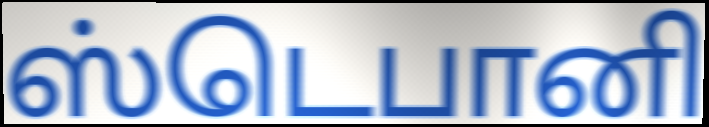
ஸ்டெபானி